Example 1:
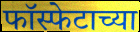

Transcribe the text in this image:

फॉस्फेटाच्या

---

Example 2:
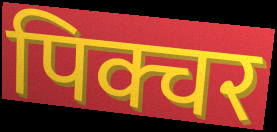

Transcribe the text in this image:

पिक्चर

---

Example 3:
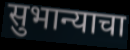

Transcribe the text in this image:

सुभान्याचा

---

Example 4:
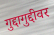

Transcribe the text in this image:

गुद्दागुद्दीवर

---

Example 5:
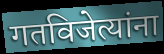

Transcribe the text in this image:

गतविजेत्यांना